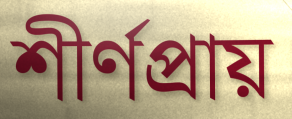
শীর্ণপ্রায়